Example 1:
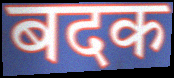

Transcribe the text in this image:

बदक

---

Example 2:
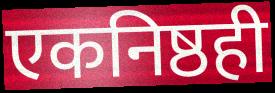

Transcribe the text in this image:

एकनिष्ठही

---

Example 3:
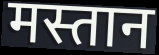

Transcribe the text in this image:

मस्तान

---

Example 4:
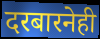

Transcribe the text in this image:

दरबारनेही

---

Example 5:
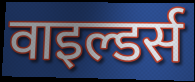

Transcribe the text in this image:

वाइल्डर्स